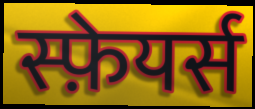
स्फ़ेयर्स